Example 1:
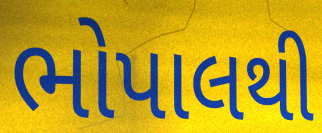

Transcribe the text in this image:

ભોપાલથી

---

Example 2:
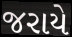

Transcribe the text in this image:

જરાયે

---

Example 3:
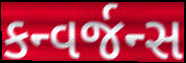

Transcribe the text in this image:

કન્વર્જન્સ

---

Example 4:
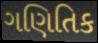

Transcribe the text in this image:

ગણિતિક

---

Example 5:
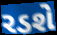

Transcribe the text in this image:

રડશે